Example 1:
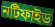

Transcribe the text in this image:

নটিফাইড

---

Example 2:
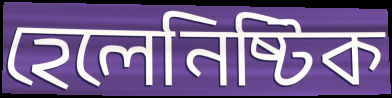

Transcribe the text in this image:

হেলেনিষ্টিক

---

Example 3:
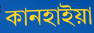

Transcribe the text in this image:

কানহাইয়া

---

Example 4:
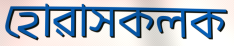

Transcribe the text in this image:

হোৱাসকলক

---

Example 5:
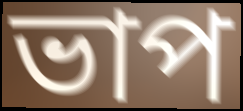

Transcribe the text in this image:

ভাপ